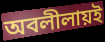
অবলীলায়ই